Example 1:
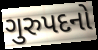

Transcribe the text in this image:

ગુરુપદનો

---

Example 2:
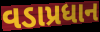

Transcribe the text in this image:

વડાપ્રધાન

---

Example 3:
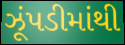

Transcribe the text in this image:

ઝૂંપડીમાંથી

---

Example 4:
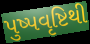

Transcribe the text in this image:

પુષ્પવૃષ્ટિથી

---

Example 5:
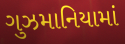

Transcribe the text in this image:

ગુઝમાનિયામાં